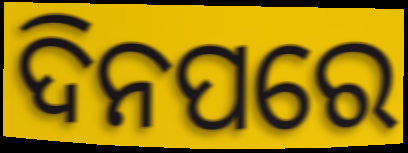
ଦିନପରେ